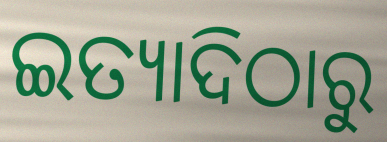
ଇତ୍ୟାଦିଠାରୁ